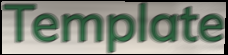
Template